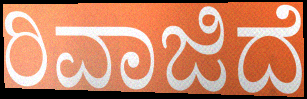
ರಿವಾಜಿದೆ